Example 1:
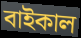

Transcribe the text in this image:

বাইকাল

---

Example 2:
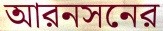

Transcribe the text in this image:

আরনসনের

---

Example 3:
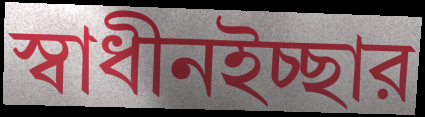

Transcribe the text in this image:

স্বাধীনইচ্ছার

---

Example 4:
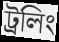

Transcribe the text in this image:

ট্রলিং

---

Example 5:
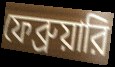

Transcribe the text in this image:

ফেব্রুয়ারি